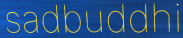
sadbuddhi